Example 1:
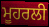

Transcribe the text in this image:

ਮੂਹਰਲੀ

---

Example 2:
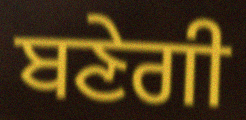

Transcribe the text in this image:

ਬਣੇਗੀ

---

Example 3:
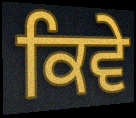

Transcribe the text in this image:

ਕਿਵੇ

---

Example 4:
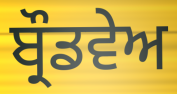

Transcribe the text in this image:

ਬ੍ਰੌਡਵੇਅ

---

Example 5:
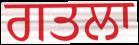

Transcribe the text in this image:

ਗਤਲਾ